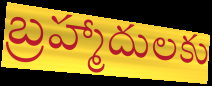
బ్రహ్మాదులకు